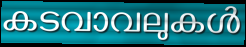
കടവാവലുകൾ